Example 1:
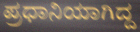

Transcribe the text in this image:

ಪ್ರಧಾನಿಯಾಗಿದ್ದ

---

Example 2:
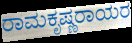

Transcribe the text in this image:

ರಾಮಕೃಷ್ಣರಾಯರ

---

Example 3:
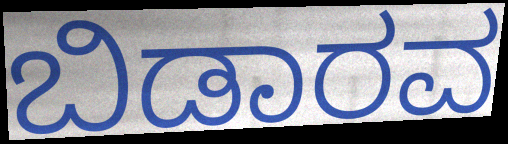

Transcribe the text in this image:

ಬಿಡಾರವ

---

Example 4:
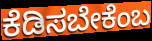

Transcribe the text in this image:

ಕೆಡಿಸಬೇಕೆಂಬ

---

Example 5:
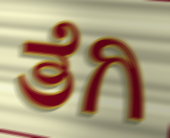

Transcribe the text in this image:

ತೆಗಿ